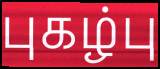
புகழ்பு